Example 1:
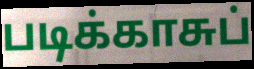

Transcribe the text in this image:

படிக்காசுப்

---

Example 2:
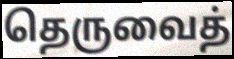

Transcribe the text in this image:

தெருவைத்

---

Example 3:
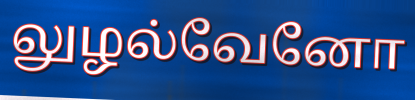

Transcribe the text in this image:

லுழல்வேனோ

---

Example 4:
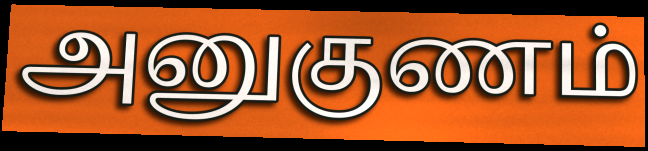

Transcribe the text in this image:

அனுகுணம்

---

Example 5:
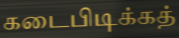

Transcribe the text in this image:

கடைபிடிக்கத்